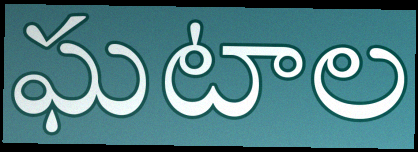
ఘటాల